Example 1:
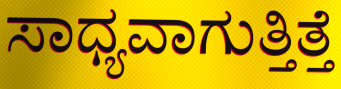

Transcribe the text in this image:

ಸಾಧ್ಯವಾಗುತ್ತಿತ್ತೆ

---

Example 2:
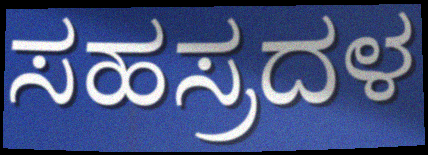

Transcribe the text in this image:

ಸಹಸ್ರದಳ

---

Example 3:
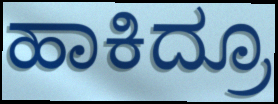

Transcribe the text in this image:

ಹಾಕಿದ್ರೂ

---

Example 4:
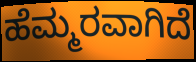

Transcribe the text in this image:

ಹೆಮ್ಮರವಾಗಿದೆ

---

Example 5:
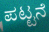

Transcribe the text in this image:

ಪಟ್ಟನೆ